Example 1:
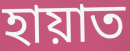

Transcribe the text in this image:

হায়াত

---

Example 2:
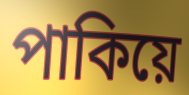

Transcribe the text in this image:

পাকিয়ে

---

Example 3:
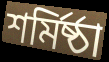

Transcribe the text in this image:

শর্মিষ্ঠা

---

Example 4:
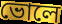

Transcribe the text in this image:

ভোলে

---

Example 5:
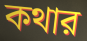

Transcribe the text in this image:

কথার